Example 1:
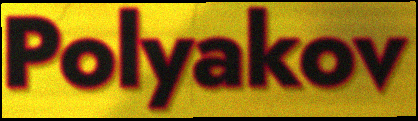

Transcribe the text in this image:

Polyakov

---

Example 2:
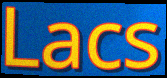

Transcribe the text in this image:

Lacs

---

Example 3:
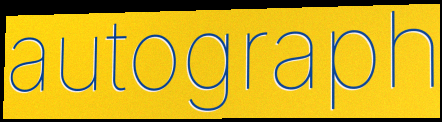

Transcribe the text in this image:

autograph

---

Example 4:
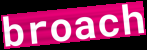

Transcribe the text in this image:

broach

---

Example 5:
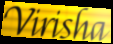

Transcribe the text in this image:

Virisha